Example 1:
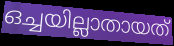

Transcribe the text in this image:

ഒച്ചയില്ലാതായത്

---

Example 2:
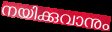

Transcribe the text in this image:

നയിക്കുവാനും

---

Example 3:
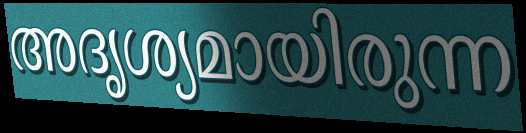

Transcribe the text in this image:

അദൃശ്യമായിരുന്ന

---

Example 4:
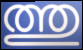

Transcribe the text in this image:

ത്തു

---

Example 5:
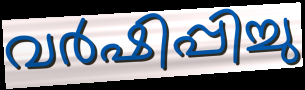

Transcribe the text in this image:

വർഷിപ്പിച്ചു